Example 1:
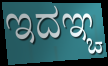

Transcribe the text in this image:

ಇದಞ್ಚ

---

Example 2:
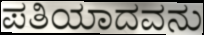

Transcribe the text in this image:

ಪತಿಯಾದವನು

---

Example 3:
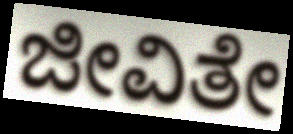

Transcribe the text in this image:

ಜೀವಿತೇ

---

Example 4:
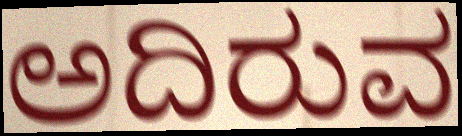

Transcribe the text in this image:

ಅದಿರುವ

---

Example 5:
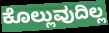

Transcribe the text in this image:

ಕೊಲ್ಲುವುದಿಲ್ಲ